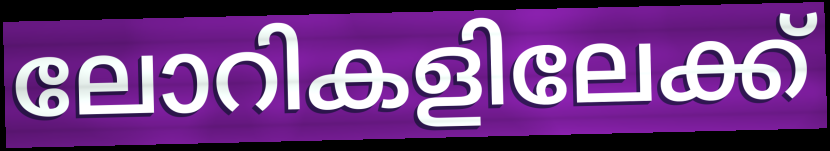
ലോറികളിലേക്ക്